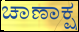
ಚಾಣಾಕ್ಷ